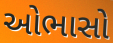
ઓભાસો